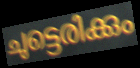
ചുട്ടെരിക്കും